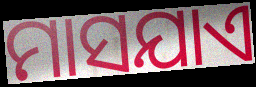
ମାସଯାଏ